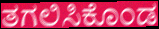
ತಗಲಿಸಿಕೊಂಡ